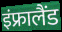
इंफ्रालैंड